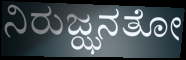
ನಿರುಜ್ಝನತೋ